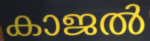
കാജൽ